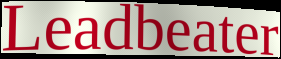
Leadbeater